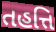
તહત્તિ